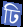
ঢি